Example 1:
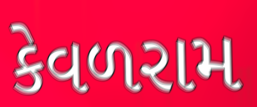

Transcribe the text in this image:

કેવળરામ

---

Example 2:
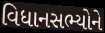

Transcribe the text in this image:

વિધાનસભ્યોને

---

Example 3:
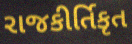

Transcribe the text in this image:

રાજકીર્તિકૃત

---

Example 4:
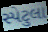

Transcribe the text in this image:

સ્પેટુલા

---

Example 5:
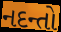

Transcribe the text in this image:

નદન્તો